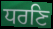
ਧਰਣਿ